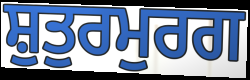
ਸ਼ੁਤੁਰਮੁਰਗ